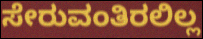
ಸೇರುವಂತಿರಲಿಲ್ಲ